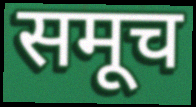
समूच